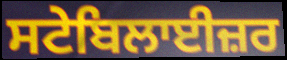
ਸਟੇਬਿਲਾਈਜ਼ਰ